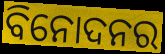
ବିନୋଦନର